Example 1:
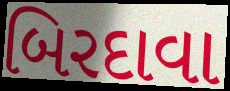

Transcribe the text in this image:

બિરદાવા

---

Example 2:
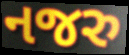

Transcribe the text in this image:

નજરુ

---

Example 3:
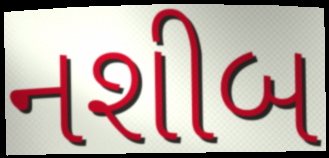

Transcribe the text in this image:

નશીબ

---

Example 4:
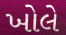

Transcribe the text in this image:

ખોલે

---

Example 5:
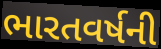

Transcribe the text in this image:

ભારતવર્ષની